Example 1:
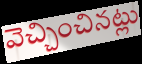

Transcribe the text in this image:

వెచ్చించినట్లు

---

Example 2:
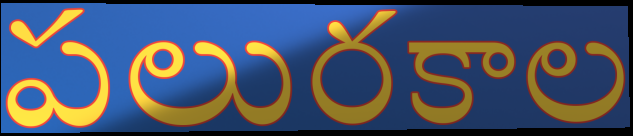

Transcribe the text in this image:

పలురకాల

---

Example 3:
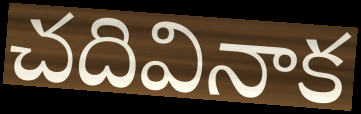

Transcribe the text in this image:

చదివినాక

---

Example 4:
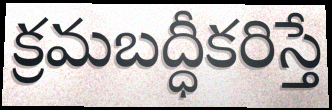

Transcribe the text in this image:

క్రమబద్ధీకరిస్తే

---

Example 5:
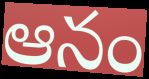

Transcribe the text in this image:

ఆనం